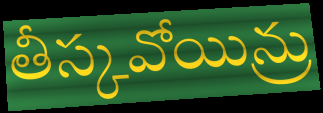
తీస్కవోయిన్రు